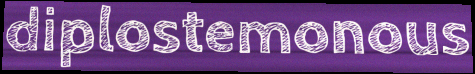
diplostemonous